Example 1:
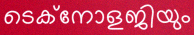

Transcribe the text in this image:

ടെക്നോളജിയും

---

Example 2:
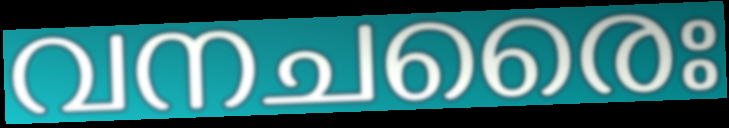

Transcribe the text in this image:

വനചരൈഃ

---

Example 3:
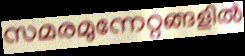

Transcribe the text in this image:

സമരമുന്നേറ്റങ്ങളിൽ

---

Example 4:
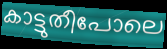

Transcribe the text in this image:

കാട്ടുതീപോലെ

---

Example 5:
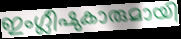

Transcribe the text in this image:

ഇംഗ്ലീഷുകാരുമായി